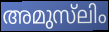
അമുസ്‌ലിം